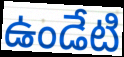
ఉండేటి